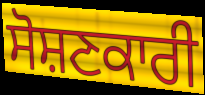
ਸੋਸ਼ਣਕਾਰੀ